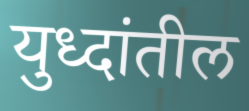
युध्दांतील